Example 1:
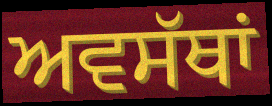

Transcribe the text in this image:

ਅਵਸੱਥਾਂ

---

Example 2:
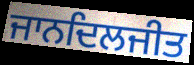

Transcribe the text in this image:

ਜਾਨਦਿਲਜੀਤ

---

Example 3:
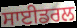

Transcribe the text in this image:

ਸਾਈਡਰਲ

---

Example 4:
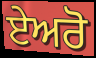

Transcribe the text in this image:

ਏਅਰੋ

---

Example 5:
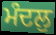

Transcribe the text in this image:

ਮੰਦਲੁ